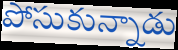
పోసుకున్నాడు